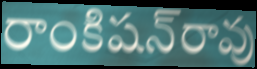
రాంకిషన్‌రావు